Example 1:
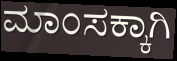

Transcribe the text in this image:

ಮಾಂಸಕ್ಕಾಗಿ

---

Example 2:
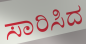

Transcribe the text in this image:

ಸಾರಿಸಿದ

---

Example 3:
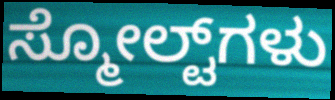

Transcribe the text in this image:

ಸ್ಮೋಲ್ಟ್‌ಗಳು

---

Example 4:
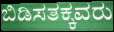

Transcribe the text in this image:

ಬಿಡಿಸತಕ್ಕವರು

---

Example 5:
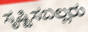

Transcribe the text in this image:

ಸೃಷ್ಟಿಸಬಲ್ಲರು